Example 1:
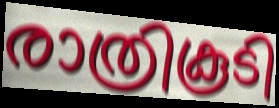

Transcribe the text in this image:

രാത്രികൂടി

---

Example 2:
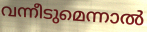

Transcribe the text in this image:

വന്നീടുമെന്നാൽ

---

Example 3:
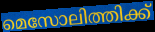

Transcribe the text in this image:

മെസോലിത്തിക്ക്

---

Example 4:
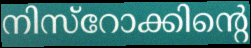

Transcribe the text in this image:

നിസ്റോക്കിന്റെ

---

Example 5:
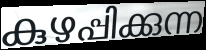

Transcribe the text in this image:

കുഴപ്പിക്കുന്ന